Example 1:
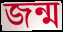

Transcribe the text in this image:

জন্ম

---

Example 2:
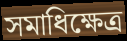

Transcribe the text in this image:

সমাধিক্ষেত্ৰ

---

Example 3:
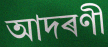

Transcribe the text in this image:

আদৰণী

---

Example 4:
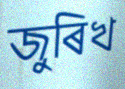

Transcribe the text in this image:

জুৰিখ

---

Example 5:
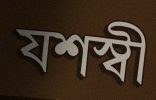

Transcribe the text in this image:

যশস্বী